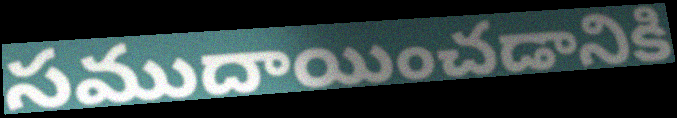
సముదాయించడానికి